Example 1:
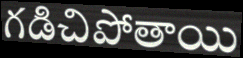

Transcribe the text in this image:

గడిచిపోతాయి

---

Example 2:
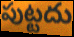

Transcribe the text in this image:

పుట్టదు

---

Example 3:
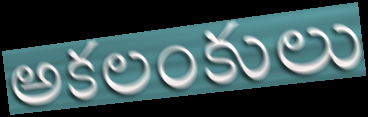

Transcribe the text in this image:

అకలంకులు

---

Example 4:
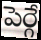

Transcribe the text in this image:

పెర్గే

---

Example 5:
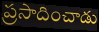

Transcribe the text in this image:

ప్రసాదించాడు